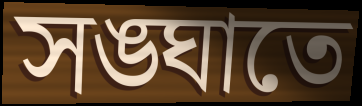
সঙ্ঘাতে